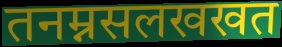
तनम्नसलखखत